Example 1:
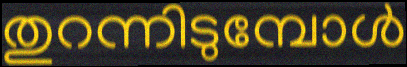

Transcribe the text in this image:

തുറന്നിടുമ്പോൾ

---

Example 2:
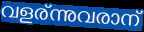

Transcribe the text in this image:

വളര്ന്നുവരാന്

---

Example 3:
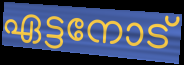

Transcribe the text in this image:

ഏട്ടനോട്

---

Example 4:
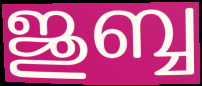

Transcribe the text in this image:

ജുബ്ബ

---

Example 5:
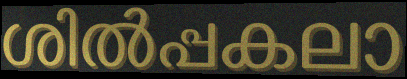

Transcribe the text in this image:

ശിൽപ്പകലാ